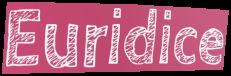
Euridice